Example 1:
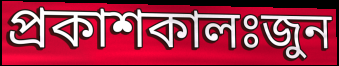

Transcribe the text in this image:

প্রকাশকালঃজুন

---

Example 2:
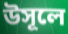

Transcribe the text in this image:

উসূলে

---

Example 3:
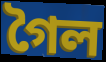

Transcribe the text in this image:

গৈল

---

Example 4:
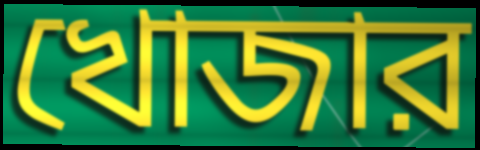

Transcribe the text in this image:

খোজার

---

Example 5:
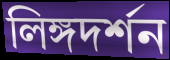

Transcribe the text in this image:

লিঙ্গদর্শন